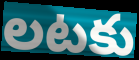
లటకు